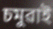
চমুৱাই